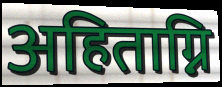
अहिताग्नि